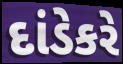
દાંડેકરે